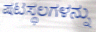
ಷಟಸ್ಥಲಗಳನ್ನು